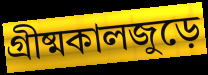
গ্রীষ্মকালজুড়ে